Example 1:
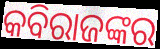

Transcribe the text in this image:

କବିରାଜଙ୍କର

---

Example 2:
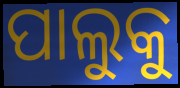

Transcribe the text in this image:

ପାଲୁକୁ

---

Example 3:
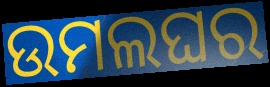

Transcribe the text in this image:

ଉମଲଘର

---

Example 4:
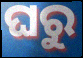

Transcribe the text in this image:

ଘରୁ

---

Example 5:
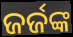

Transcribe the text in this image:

ଜର୍ଜଙ୍କ